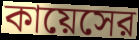
কায়েসের